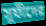
সুফীদের